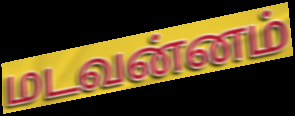
மடவன்னம்